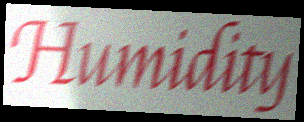
Humidity